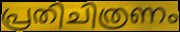
പ്രതിചിത്രണം